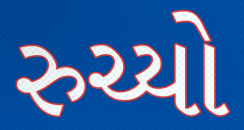
રુચ્યો